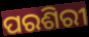
ପରଶିରୀ